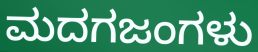
ಮದಗಜಂಗಳು